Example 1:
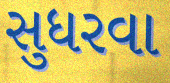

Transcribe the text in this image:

સુધરવા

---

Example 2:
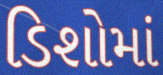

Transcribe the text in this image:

ડિશોમાં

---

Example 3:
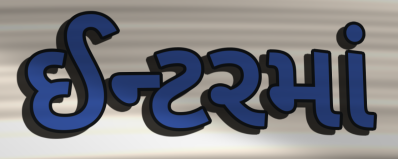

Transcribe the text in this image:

ઈન્ટરમાં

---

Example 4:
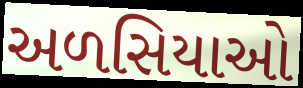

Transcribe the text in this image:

અળસિયાઓ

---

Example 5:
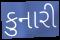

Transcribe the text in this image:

કુનારી